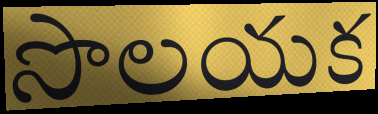
సొలయక